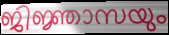
ജിജ്ഞാസയും